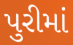
પુરીમાં